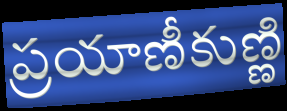
ప్రయాణీకుణ్ణి